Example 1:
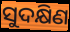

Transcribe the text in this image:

ସୁଦକ୍ଷିଣ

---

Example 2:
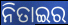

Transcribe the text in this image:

ନିତାଇର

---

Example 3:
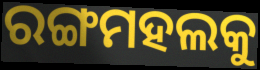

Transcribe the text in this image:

ରଙ୍ଗମହଲକୁ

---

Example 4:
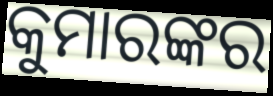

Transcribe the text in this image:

କୁମାରଙ୍କର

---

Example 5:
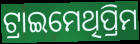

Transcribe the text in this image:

ଟ୍ରାଇମେଥିପ୍ରିମ